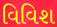
વિવિશ